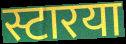
स्टारया